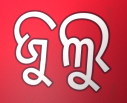
ଜୁଲୁ